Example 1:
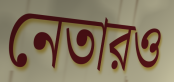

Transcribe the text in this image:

নেতারও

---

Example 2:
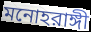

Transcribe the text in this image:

মনোহরাঙ্গী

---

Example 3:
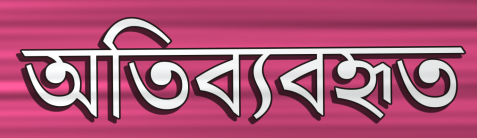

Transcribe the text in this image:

অতিব্যবহৃত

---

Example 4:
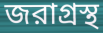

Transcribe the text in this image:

জরাগ্রস্থ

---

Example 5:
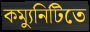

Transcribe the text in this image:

কম্যুনিটিতে